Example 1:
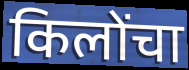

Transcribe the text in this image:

किलोंचा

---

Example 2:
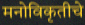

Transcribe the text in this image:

मनोविकृतीचे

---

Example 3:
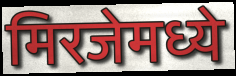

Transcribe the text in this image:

मिरजेमध्ये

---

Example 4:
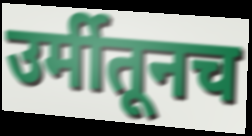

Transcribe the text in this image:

उर्मीतूनच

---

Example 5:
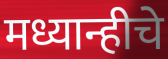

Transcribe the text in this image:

मध्यान्हीचे